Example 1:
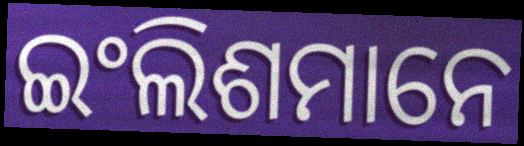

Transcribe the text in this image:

ଇଂଲିଶମାନେ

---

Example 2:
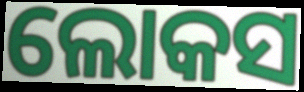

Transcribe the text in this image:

ଲୋକସ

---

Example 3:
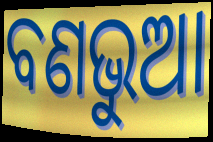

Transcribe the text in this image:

ବଣଭୁଆ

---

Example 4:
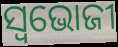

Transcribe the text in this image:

ସ୍ଵଭୋଜୀ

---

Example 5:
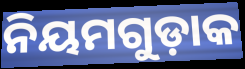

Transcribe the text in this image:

ନିୟମଗୁଡ଼ାକ